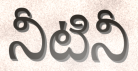
నీటినీ